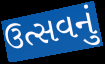
ઉત્સવનું